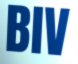
BIV